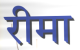
रीमा